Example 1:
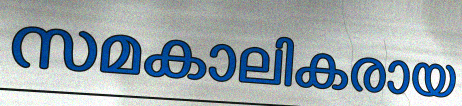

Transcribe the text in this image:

സമകാലികരായ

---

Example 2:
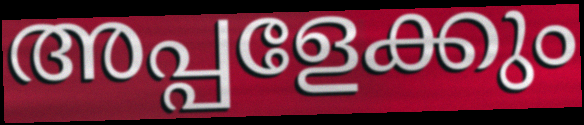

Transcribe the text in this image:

അപ്പളേക്കും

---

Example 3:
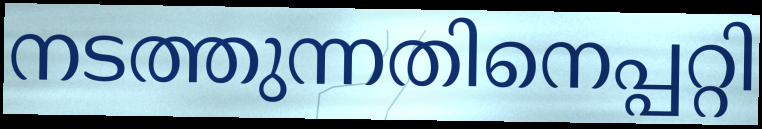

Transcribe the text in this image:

നടത്തുന്നതിനെപ്പറ്റി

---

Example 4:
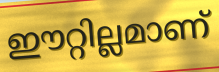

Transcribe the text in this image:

ഈറ്റില്ലമാണ്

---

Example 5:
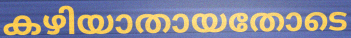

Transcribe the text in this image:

കഴിയാതായതോടെ